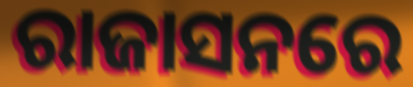
ରାଜାସନରେ